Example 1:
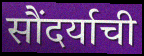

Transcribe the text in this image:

सौंदर्याची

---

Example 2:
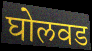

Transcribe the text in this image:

घोलवड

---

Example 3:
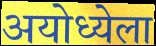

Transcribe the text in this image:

अयोध्येला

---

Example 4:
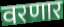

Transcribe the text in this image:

वरणार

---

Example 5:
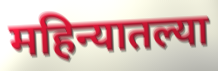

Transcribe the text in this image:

महिन्यातल्या